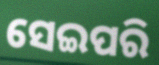
ସେଇପରି